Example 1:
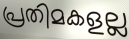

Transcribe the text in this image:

പ്രതിമകളല്ല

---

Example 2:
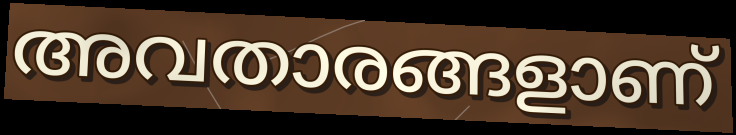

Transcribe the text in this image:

അവതാരങ്ങളാണ്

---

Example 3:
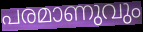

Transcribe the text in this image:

പരമാണുവും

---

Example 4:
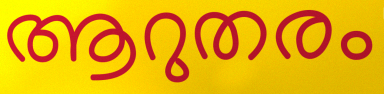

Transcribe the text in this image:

ആറുതരം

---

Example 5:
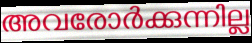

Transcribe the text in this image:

അവരോർക്കുന്നില്ല